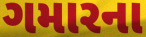
ગમારના